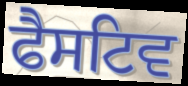
ਫੈਸਟਿਵ